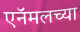
एनॅमलच्या